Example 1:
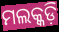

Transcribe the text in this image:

ମଲକ୍କଡ଼ି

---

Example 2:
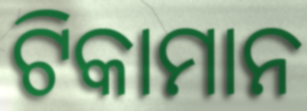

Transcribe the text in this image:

ଟିକାମାନ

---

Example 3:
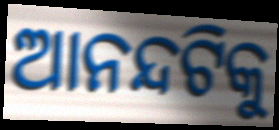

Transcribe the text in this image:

ଆନନ୍ଦଟିକୁ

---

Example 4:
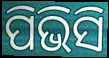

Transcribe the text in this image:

ପିଭିସି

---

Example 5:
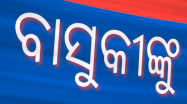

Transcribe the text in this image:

ବାସୁକୀଙ୍କୁ